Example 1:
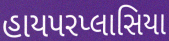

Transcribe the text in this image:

હાયપરપ્લાસિયા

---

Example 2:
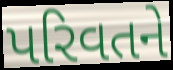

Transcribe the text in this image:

પરિવતને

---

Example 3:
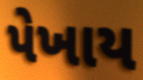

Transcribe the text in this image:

પેખાય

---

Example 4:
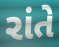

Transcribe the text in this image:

રાંતે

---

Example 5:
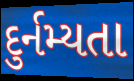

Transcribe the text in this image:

દુર્નમ્યતા